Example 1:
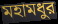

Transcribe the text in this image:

মহামধুর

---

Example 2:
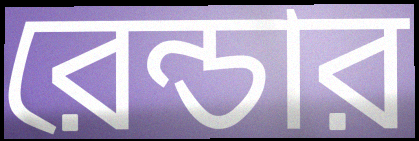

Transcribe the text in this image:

রেন্ডার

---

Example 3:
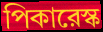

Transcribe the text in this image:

পিকারেস্ক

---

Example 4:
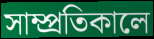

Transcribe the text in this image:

সাম্প্রতিকালে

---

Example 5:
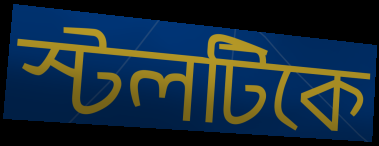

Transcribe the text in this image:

স্টলটিকে